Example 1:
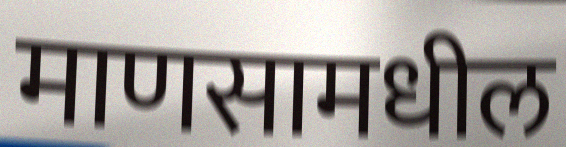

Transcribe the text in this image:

माणसामधील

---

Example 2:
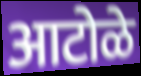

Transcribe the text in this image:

आटोळे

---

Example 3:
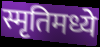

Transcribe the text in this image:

स्मृतिमध्ये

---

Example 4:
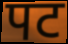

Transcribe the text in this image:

पट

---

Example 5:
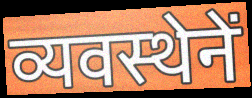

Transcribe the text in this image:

व्यवस्थेनें